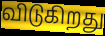
விடுகிறது